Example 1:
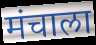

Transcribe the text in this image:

मंचाला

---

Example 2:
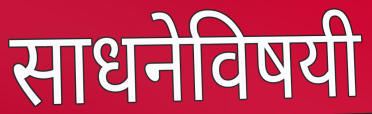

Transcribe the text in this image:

साधनेविषयी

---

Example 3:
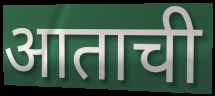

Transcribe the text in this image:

आताची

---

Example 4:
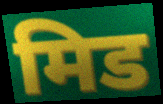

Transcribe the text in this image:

मिड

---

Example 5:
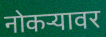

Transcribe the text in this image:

नोकऱ्यावर